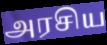
அரசிய